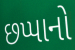
છપ્પાનો